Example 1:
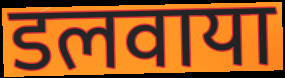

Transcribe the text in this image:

डलवाया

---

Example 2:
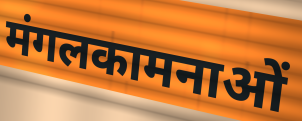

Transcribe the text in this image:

मंगलकामनाओं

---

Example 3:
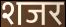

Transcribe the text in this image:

शजर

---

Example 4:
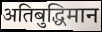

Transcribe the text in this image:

अतिबुद्धिमान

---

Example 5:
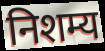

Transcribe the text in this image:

निशम्य